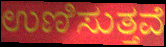
ಉಣಿಸುತ್ತವೆ